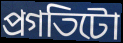
প্ৰগতিটো